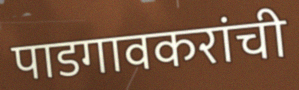
पाडगावकरांची